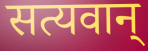
सत्यवान्